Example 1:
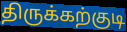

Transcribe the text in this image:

திருக்கற்குடி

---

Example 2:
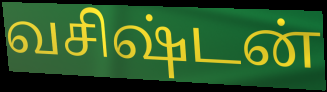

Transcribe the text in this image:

வசிஷ்டன்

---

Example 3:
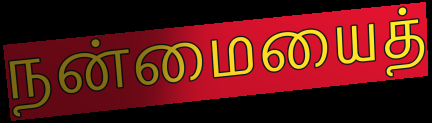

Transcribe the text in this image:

நன்மையைத்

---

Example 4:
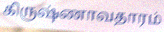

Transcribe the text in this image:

கிருஷ்ணாவதாரம்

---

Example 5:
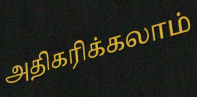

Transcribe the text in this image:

அதிகரிக்கலாம்